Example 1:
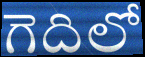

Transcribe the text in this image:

గెదిలో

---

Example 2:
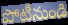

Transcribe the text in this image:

పోటీనుండి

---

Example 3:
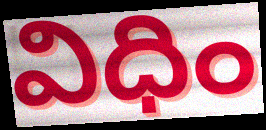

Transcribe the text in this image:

విధిం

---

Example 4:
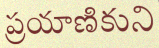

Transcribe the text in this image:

ప్రయాణికుని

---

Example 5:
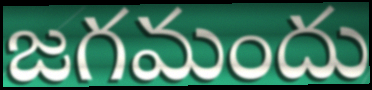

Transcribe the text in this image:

జగమందు